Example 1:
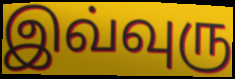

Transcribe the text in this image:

இவ்வுரு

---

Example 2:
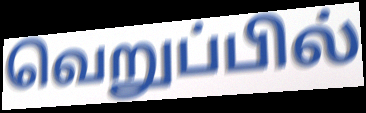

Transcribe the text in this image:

வெறுப்பில்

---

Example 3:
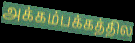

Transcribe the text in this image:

அக்கம்பக்கத்தில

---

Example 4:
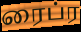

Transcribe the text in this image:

ரைப்ர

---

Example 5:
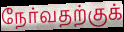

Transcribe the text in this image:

நேர்வதற்குக்